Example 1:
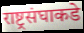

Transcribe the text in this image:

राष्ट्रसंघाकडे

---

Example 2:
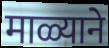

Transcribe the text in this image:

माळ्याने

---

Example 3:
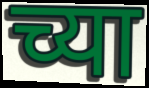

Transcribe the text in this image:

च्या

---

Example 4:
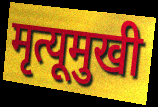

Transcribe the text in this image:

मृत्यूमुखी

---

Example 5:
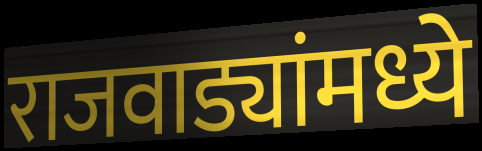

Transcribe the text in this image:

राजवाड्यांमध्ये